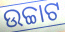
ଉଚ୍ଚାଟ